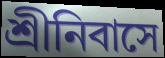
শ্ৰীনিবাসে